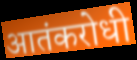
आतंकरोधी